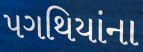
પગથિયાંના